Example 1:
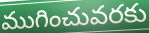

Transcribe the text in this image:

ముగించువరకు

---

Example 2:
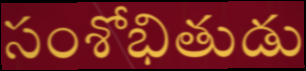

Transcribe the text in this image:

సంశోభితుడు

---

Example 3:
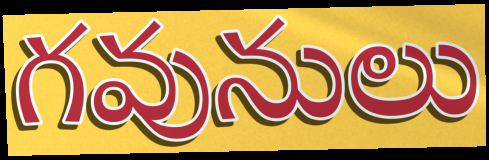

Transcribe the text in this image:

గవునులు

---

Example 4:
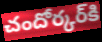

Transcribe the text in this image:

చందోర్కర్‌కి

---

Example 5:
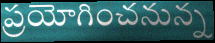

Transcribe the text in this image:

ప్రయోగించనున్న